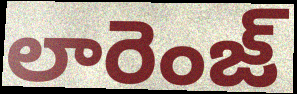
లారెంజ్